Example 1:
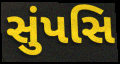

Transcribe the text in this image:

સુંપસિ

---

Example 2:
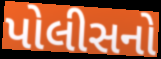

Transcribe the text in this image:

પોલીસનો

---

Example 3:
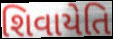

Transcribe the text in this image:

શિવાયેતિ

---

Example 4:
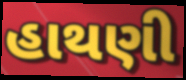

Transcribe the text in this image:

હાથણી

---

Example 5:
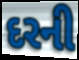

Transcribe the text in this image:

દરની